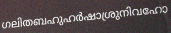
ഗലിതബഹുഹർഷാശ്രുനിവഹോ